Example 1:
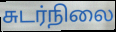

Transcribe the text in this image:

சுடர்நிலை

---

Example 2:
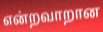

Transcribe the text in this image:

என்றவாறான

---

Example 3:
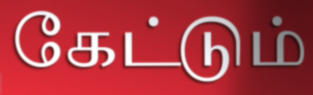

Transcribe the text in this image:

கேட்டும்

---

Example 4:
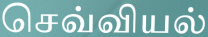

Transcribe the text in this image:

செவ்வியல்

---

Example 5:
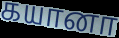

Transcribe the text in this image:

கயானா